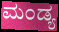
ಮಂಡ್ಯ